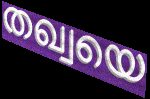
തഖ്വയെ